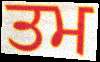
ਤਮ